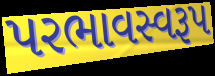
પરભાવસ્વરૂપ